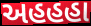
અહહહા